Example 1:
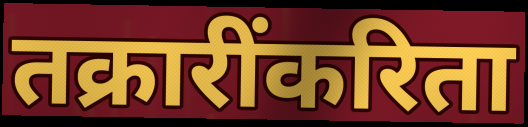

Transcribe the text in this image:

तक्रारींकरिता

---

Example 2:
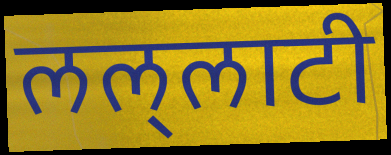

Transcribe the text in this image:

लल्लाटी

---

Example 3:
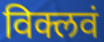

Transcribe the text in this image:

विक्लवं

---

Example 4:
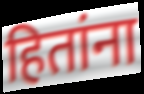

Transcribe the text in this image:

हितांना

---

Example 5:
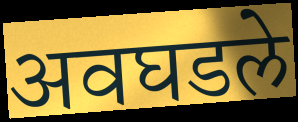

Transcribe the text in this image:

अवघडले